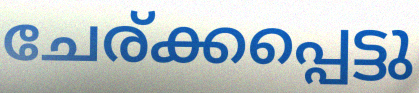
ചേര്ക്കപ്പെട്ടു